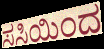
ಸಸಿಯಿಂದ